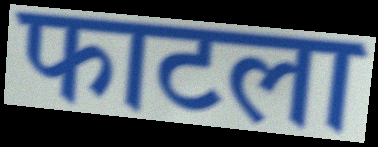
फाटला